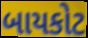
બાયકોટ